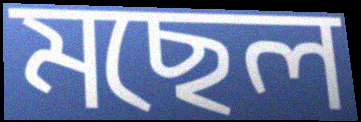
মছেল